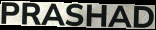
PRASHAD